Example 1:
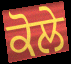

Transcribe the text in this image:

ਕੋਲੇ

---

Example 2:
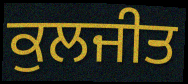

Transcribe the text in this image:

ਕੁਲਜੀਤ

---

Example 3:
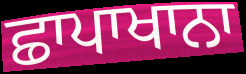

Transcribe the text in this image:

ਛਾਪਾਖਾਨਾ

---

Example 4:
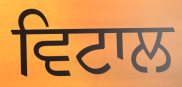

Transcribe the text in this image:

ਵਿਟਾਲ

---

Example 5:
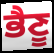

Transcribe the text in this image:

ਭੈਣੂ